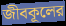
জীবকূলের